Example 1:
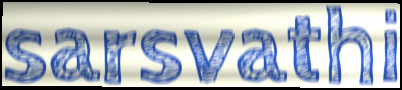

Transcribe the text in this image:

sarsvathi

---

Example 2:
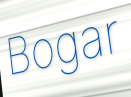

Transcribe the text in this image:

Bogar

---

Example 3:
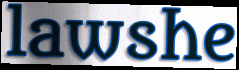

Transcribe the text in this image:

lawshe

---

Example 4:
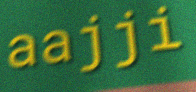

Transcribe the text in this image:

aajji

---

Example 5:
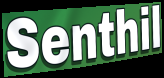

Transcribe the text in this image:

Senthil